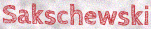
Sakschewski